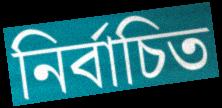
নির্বাচিত